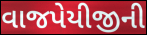
વાજપેયીજીની